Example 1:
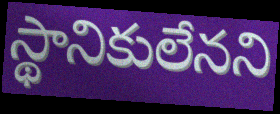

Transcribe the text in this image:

స్థానికులేనని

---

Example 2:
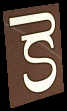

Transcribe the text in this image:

కె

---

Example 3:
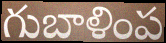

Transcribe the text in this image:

గుబాళింప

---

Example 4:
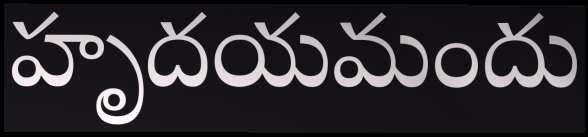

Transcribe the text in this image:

హృదయమందు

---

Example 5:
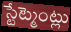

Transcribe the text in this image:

స్టేట్మెంట్లు